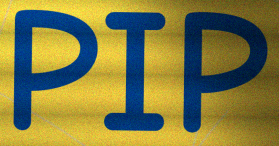
PIP